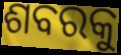
ଶବରକୁ